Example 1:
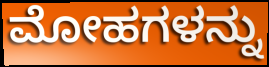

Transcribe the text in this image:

ಮೋಹಗಳನ್ನು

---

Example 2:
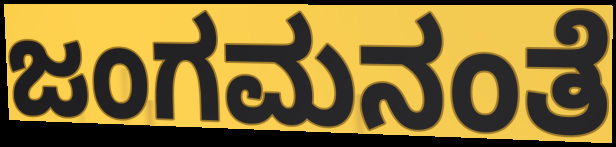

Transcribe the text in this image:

ಜಂಗಮನಂತೆ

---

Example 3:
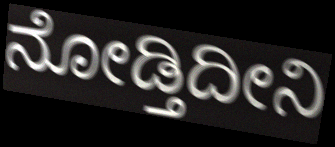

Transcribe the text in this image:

ನೋಡ್ತಿದೀನಿ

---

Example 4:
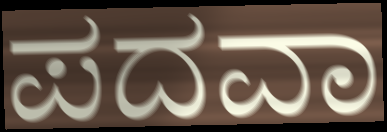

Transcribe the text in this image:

ಪದವಾ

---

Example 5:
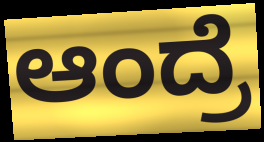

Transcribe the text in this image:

ಆಂದ್ರೆ